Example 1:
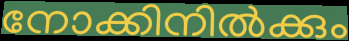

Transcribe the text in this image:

നോക്കിനിൽക്കും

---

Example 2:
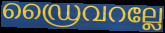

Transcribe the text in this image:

ഡ്രൈവറല്ലേ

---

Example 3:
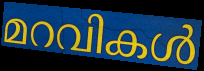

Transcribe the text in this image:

മറവികൾ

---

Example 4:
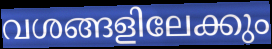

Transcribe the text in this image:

വശങ്ങളിലേക്കും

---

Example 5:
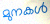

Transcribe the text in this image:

മുനകൾ